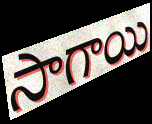
సాగాయి